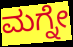
ಮಗ್ನೇ